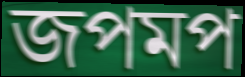
জপমপ